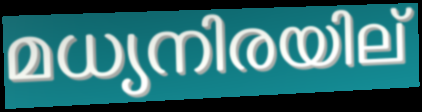
മധ്യനിരയില്